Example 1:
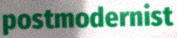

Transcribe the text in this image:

postmodernist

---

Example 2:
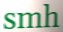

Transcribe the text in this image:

smh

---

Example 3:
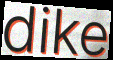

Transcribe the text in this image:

dike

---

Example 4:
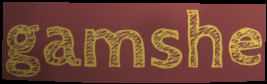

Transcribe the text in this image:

gamshe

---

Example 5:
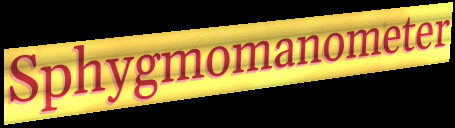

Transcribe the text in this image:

Sphygmomanometer